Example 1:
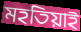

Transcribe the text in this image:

মহতিয়াই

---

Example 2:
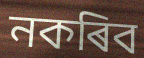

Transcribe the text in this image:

নকৰিব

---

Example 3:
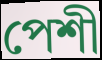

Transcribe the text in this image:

পেশী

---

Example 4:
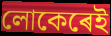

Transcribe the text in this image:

লোকেৰেই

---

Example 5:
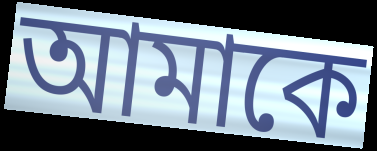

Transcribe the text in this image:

আমাকে